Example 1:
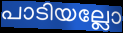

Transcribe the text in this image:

പാടിയല്ലോ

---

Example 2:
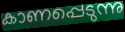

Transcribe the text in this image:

കാണപ്പെടുന്നു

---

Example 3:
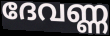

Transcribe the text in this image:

ദേവണ്ണ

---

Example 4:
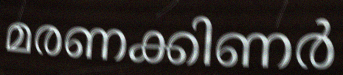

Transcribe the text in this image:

മരണക്കിണർ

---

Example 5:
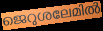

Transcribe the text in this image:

ജെറുശലേമിൽ